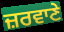
ਜ਼ਰਵਾਣੇ